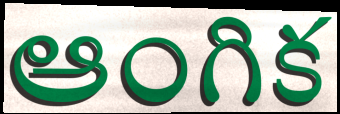
ఆంగిక